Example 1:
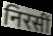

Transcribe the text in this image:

निरसीं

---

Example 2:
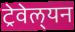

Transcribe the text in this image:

ट्रेवेल्यन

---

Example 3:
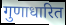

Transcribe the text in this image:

गुणाधारित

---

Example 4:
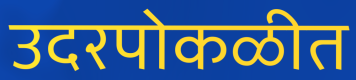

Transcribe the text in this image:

उदरपोकळीत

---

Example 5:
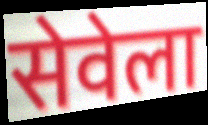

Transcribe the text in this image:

सेवेला